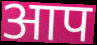
आप